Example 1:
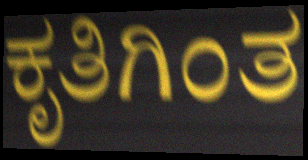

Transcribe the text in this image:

ಕೃತಿಗಿಂತ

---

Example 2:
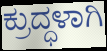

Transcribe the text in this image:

ಕ್ರುದ್ಧಳಾಗಿ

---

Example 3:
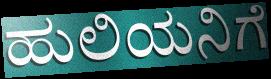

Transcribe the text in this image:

ಹುಲಿಯನಿಗೆ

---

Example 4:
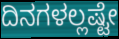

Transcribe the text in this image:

ದಿನಗಳಲ್ಲಷ್ಟೇ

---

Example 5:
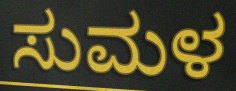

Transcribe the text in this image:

ಸುಮಳ